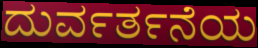
ದುರ್ವರ್ತನೆಯ